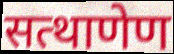
सत्थाणेण